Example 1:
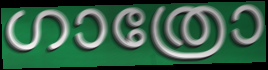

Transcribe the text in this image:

ഗാത്രോ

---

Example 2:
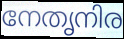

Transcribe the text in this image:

നേതൃനിര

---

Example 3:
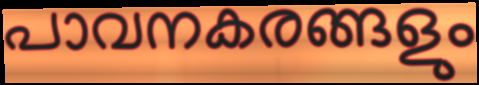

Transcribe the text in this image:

പാവനകരങ്ങളും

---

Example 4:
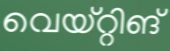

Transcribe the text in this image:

വെയ്റ്റിങ്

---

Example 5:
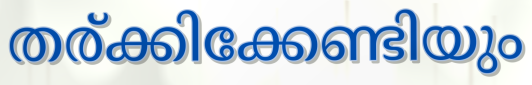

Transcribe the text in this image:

തര്ക്കിക്കേണ്ടിയും